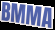
BMMA